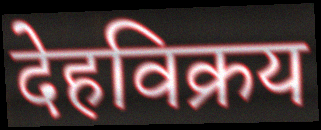
देहविक्रय